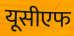
यूसीएफ